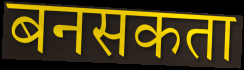
बनसकता